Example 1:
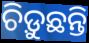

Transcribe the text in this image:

ଚିଡ଼ୁଛନ୍ତି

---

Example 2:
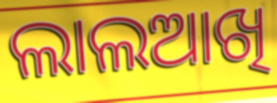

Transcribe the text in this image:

ଲାଲଆଖି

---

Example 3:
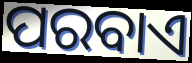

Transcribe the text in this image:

ପରବାଏ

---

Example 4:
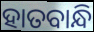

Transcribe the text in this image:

ହାତବାନ୍ଧି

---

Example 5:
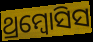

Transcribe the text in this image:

ଥ୍ରମ୍ବୋସିସ